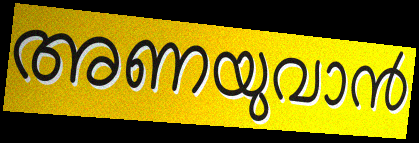
അണയുവാൻ